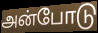
அன்போடு